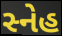
સ્નેહ